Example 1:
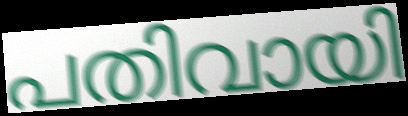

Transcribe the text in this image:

പതിവായി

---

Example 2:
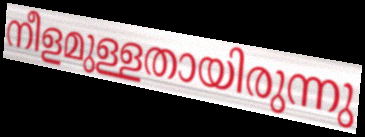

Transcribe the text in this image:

നീളമുള്ളതായിരുന്നു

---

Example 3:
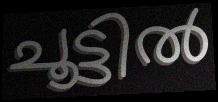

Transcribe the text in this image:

ചൂട്ടിൽ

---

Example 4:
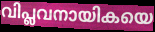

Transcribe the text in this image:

വിപ്ലവനായികയെ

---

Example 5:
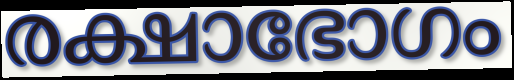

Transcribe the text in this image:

രക്ഷാഭോഗം